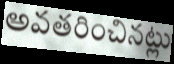
అవతరించినట్లు